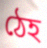
ঠেহ